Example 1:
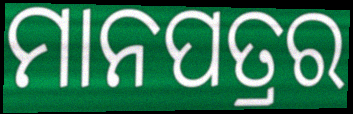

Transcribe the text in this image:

ମାନପତ୍ରର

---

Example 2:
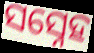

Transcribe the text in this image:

ସସ୍ନେହ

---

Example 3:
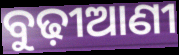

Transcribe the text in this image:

ବୁଢ଼ୀଆଣୀ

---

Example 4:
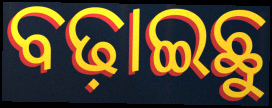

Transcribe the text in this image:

ବଢ଼ାଇଛୁ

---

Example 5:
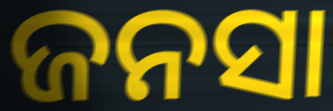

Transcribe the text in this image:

ଜନସା